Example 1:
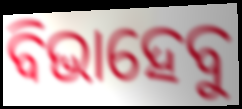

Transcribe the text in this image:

ବିଭାହେବୁ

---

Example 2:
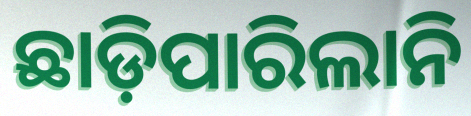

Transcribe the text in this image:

ଛାଡ଼ିପାରିଲାନି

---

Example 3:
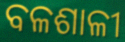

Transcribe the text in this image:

ବଳଶାଳୀ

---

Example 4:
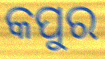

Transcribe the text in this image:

କପୁର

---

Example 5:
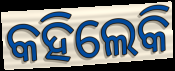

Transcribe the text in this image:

କହିଲେକି